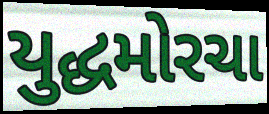
યુદ્ધમોરચા